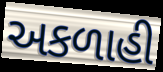
અકળાહી